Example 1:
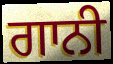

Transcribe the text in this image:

ਗਾਨੀ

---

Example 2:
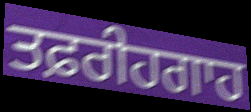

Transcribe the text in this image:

ਤਫ਼ਰੀਹਗਾਹ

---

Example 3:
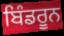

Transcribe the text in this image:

ਬਿੰਡਰੂਨ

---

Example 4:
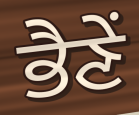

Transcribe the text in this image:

ਭੈਣੇਂ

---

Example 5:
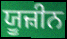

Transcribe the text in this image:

ਯੂਜ਼ੀਨ